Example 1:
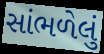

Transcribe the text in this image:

સાંભળેલું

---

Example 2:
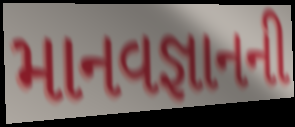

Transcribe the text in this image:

માનવજ્ઞાનની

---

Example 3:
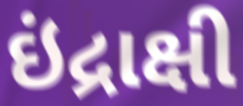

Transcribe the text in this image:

ઇંદ્રાક્ષી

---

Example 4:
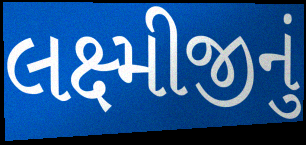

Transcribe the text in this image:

લક્ષ્મીજીનું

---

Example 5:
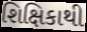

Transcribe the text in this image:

શિક્ષિકાથી